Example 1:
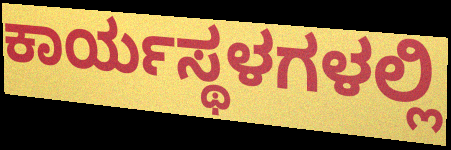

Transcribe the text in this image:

ಕಾರ್ಯಸ್ಥಳಗಳಲ್ಲಿ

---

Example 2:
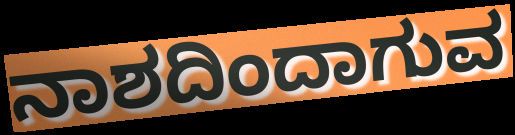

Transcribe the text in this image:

ನಾಶದಿಂದಾಗುವ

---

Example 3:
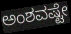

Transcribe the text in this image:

ಅಂಶವಷ್ಟೇ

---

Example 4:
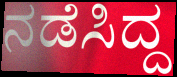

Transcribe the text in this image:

ನಡೆಸಿದ್ದ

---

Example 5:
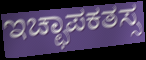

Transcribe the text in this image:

ಇಚ್ಛಾಪಕತಸ್ಸ